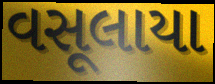
વસૂલાયા